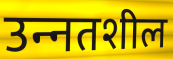
उन्नतशील